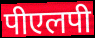
पीएलपी